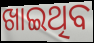
ଖାଇଥିବ